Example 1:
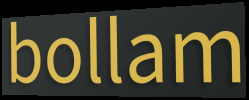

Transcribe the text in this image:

bollam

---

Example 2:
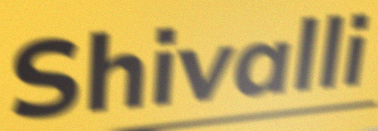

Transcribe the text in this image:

Shivalli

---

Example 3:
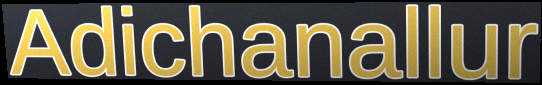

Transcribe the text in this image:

Adichanallur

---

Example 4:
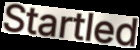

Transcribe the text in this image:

Startled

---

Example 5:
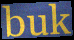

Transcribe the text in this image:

buk